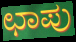
ಛಾಪು